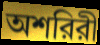
অশরিরী